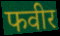
फवीर